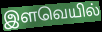
இளவெயில்